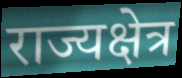
राज्यक्षेत्र